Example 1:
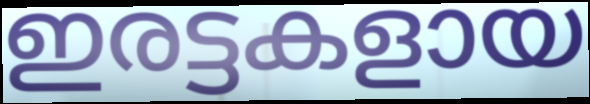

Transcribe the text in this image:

ഇരട്ടകളായ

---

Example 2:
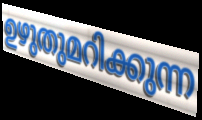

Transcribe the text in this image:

ഉഴുതുമറിക്കുന്ന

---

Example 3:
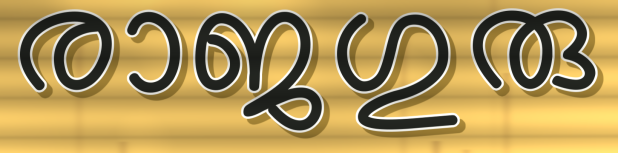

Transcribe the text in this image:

രാജഗുരു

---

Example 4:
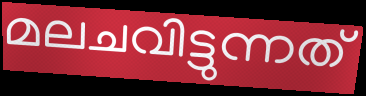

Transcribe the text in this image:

മലചവിട്ടുന്നത്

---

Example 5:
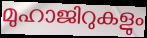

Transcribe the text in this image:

മുഹാജിറുകളും